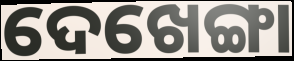
ଦେଖେଙ୍ଗା